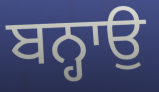
ਬਨ੍ਹਾਉ